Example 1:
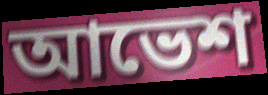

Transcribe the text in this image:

আভেশ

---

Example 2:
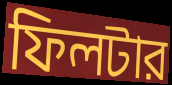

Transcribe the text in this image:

ফিলটার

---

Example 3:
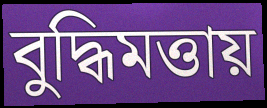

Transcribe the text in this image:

বুদ্ধিমত্তায়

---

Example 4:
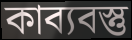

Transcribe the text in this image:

কাব্যবস্তু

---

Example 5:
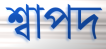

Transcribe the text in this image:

শ্বাপদ